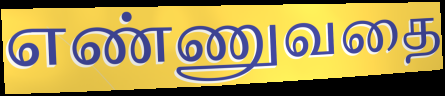
எண்ணுவதை